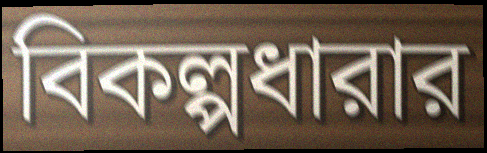
বিকল্পধারার